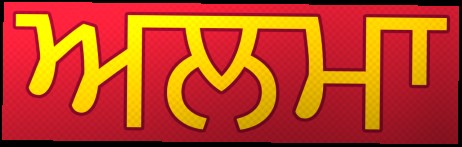
ਅਲਮਾ